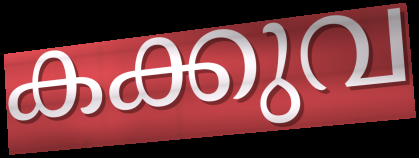
കക്കുവ